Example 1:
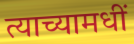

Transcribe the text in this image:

त्याच्यामधीं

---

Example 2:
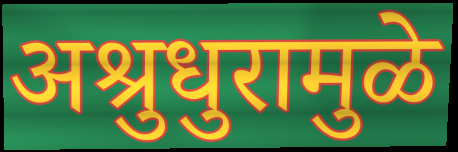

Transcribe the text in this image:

अश्रुधुरामुळे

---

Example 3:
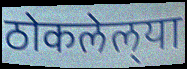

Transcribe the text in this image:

ठोकलेल्या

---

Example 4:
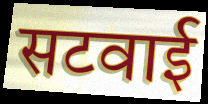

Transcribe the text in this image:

सटवाई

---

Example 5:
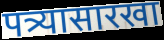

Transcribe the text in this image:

पत्र्यासारखा